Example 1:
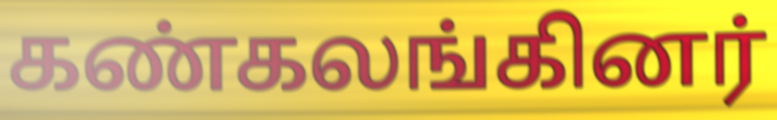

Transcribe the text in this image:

கண்கலங்கினர்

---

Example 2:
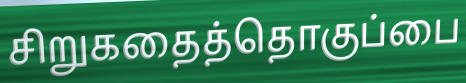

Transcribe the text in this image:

சிறுகதைத்தொகுப்பை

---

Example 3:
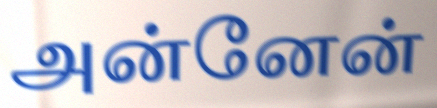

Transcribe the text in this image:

அன்னேன்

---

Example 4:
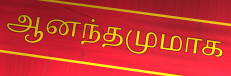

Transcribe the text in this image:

ஆனந்தமுமாக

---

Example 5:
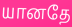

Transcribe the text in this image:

யானதே